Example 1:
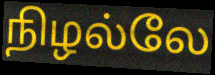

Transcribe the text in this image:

நிழல்லே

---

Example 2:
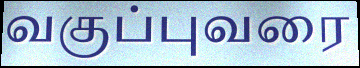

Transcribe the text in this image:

வகுப்புவரை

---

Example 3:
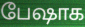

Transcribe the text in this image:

பேஷாக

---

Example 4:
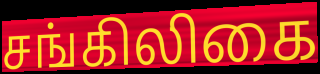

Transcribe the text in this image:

சங்கிலிகை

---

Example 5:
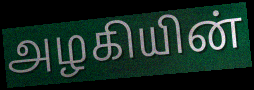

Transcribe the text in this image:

அழகியின்